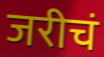
जरीचं